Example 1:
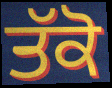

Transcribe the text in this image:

ਤੱਕੋ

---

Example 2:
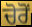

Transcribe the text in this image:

ਚੋਰੋਂ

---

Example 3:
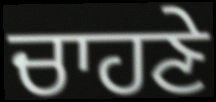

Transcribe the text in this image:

ਚਾਹਣੇ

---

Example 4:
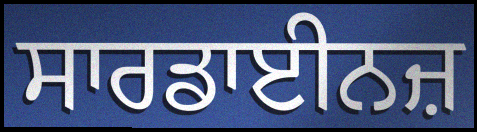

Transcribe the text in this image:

ਸਾਰਡਾਈਨਜ਼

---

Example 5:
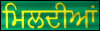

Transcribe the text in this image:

ਮਿਲਦੀਆਂ